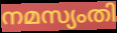
നമസ്യംതി